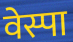
वेस्‍पा